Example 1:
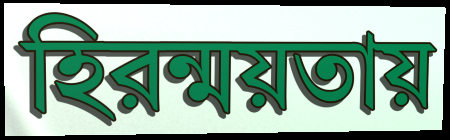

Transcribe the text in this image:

হিরন্ময়তায়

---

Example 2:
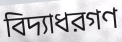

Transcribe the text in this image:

বিদ্যাধরগণ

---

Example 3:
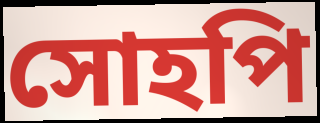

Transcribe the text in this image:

সোহপি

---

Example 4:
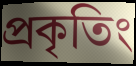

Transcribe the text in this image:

প্রকৃতিং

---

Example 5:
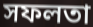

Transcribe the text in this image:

সফলতা